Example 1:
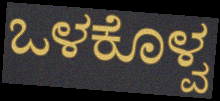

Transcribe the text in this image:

ಒಳಕೊಳ್ವ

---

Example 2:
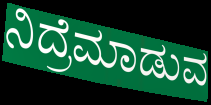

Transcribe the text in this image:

ನಿದ್ರೆಮಾಡುವ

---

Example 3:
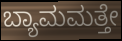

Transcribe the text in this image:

ಬ್ಯಾಮಮತ್ತೇ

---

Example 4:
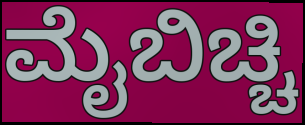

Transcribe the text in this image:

ಮೈಬಿಚ್ಚಿ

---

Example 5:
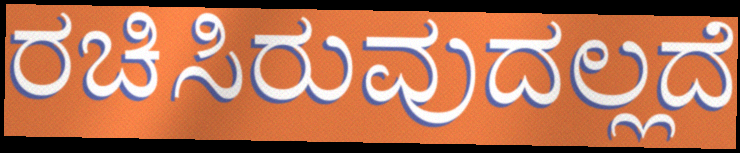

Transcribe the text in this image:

ರಚಿಸಿರುವುದಲ್ಲದೆ